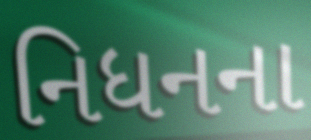
નિધનના